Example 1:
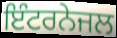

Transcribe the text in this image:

ਇੰਟਰਨੇਜਲ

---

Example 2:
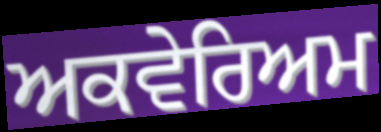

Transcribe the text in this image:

ਅਕਵੇਰਿਅਮ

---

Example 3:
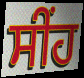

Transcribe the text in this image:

ਸੀਂਹ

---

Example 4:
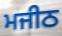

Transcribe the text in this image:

ਮਜੀਠ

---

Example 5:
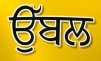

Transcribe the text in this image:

ਉੱਬਲ